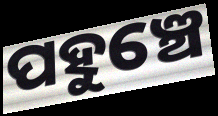
ପହୁଞ୍ଚେ